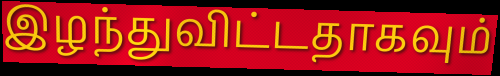
இழந்துவிட்டதாகவும்